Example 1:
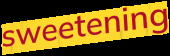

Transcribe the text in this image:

sweetening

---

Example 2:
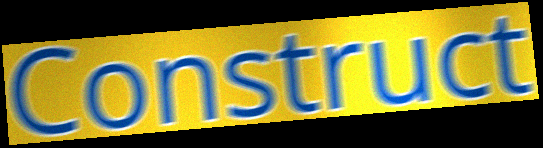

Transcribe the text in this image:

Construct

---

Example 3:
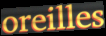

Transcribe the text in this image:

oreilles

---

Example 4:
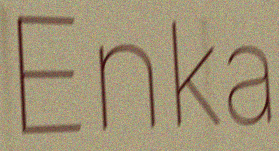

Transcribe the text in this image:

Enka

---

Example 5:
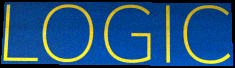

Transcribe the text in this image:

LOGIC